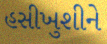
હસીખુશીને